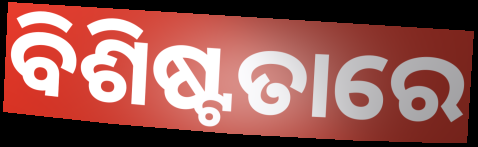
ବିଶିଷ୍ଟତାରେ